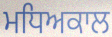
ਮਧਿਅਕਾਲ